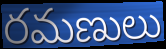
రమణులు